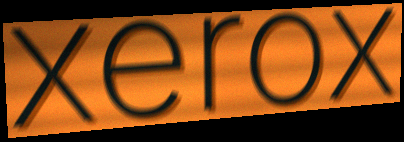
xerox